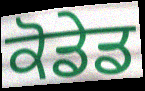
ਕੋਡੇਡ